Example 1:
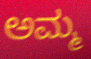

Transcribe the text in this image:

ಅಮ್ಮ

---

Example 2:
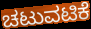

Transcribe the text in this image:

ಚಟುವಟಿಕೆ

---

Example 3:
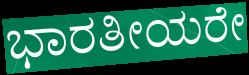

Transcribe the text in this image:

ಭಾರತೀಯರೇ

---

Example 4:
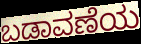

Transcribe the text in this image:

ಬಡಾವಣೆಯ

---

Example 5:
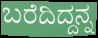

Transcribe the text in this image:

ಬರೆದಿದ್ದನ್ನ